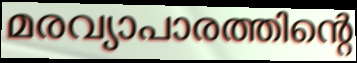
മരവ്യാപാരത്തിന്റെ